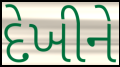
દેખીને